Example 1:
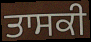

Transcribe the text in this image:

ਤਾਸਕੀ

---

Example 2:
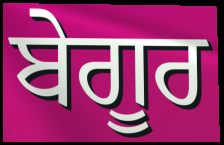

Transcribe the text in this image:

ਬੇਗੂਰ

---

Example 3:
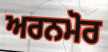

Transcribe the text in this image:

ਅਰਨਮੋਰ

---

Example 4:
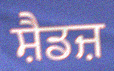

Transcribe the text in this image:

ਸ਼ੈਡਜ਼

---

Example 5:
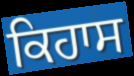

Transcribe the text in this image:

ਕਿਹਾਸ